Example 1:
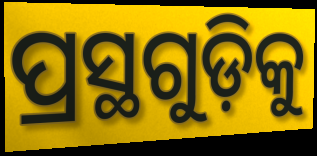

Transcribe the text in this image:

ପ୍ରସ୍ଥଗୁଡ଼ିକୁ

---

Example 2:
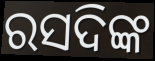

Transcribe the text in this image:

ରସଦିଙ୍କ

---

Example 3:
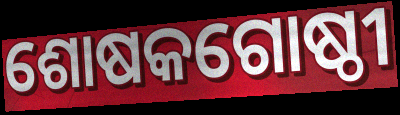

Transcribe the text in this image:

ଶୋଷକଗୋଷ୍ଠୀ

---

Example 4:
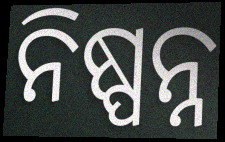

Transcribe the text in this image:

ନିଷ୍ପନ୍ନ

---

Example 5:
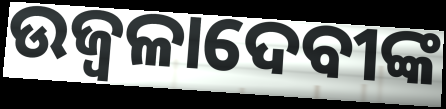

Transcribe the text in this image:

ଉଜ୍ୱଳାଦେବୀଙ୍କ